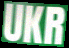
UKR